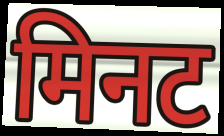
मिनट